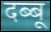
दब्बू